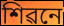
শিৱনে